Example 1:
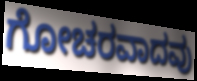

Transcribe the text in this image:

ಗೋಚರವಾದವು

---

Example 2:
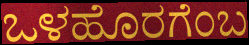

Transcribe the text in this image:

ಒಳಹೊರಗೆಂಬ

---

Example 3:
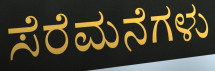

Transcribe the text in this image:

ಸೆರೆಮನೆಗಳು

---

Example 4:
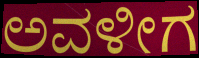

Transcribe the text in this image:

ಅವಳೀಗ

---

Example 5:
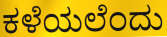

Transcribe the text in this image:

ಕಳೆಯಲೆಂದು